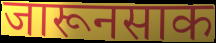
जारूनसाक